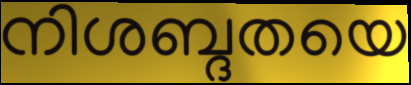
നിശബ്ദതയെ